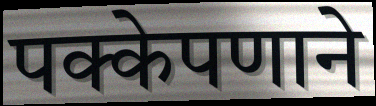
पक्केपणाने